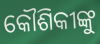
କୌଶିକୀଙ୍କୁ